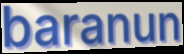
baranun